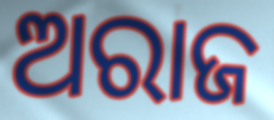
ଅରାଜ